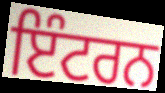
ਇੰਟਰਨ